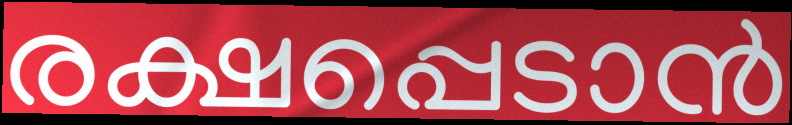
രക്ഷപ്പെടാൻ